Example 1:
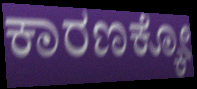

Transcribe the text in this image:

ಕಾರಣಕ್ಕೋ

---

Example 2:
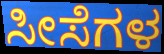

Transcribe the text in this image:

ಸೀಸೆಗಳ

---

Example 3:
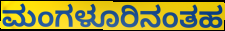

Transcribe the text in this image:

ಮಂಗಳೂರಿನಂತಹ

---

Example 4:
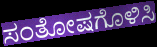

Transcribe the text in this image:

ಸಂತೋಷಗೊಳಿಸಿ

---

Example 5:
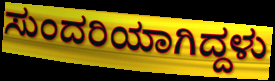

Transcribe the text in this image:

ಸುಂದರಿಯಾಗಿದ್ದಳು